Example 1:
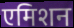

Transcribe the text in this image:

एमिशन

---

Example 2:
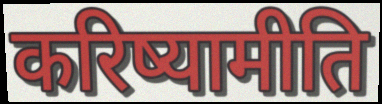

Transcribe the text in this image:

करिष्यामीति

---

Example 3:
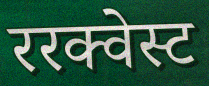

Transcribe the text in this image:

ररक्वेस्ट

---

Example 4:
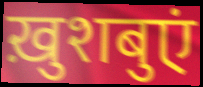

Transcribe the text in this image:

ख़ुशबुएं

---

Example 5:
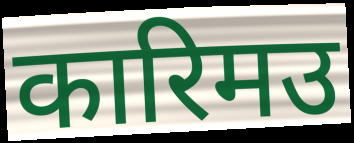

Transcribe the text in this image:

कारिमउ